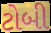
ટોબી